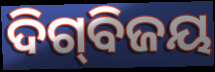
ଦିଗ୍‌ବିଜୟ